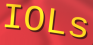
IOLs